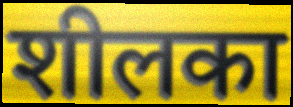
शीलका